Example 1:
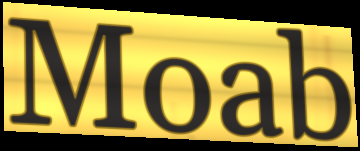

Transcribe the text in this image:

Moab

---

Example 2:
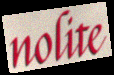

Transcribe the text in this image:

nolite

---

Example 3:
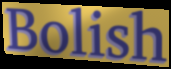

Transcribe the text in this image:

Bolish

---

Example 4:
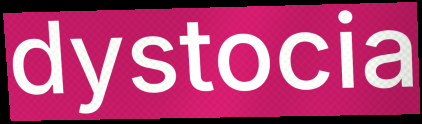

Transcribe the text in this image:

dystocia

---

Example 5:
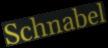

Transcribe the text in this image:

Schnabel